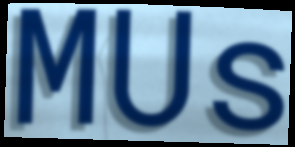
MUs